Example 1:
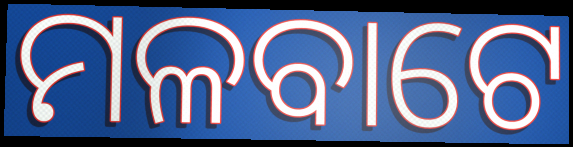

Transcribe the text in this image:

ମଳବାଟେ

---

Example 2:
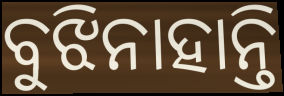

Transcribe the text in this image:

ବୁଝିନାହାନ୍ତି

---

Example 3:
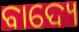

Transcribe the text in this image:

ବାଦ୍ୟେ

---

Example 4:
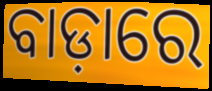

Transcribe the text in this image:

ବାଡ଼ାରେ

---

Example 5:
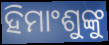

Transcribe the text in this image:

ହିମାଂଶୁଙ୍କୁ